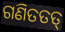
ଗଣିତତତ୍